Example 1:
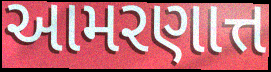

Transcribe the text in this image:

આમરણાત્ત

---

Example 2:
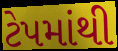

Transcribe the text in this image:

ટેપમાંથી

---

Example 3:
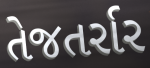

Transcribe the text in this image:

તેજતર્રાર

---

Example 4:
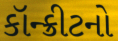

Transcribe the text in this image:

કૉન્ક્રીટનો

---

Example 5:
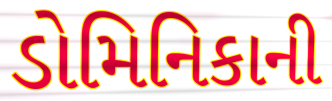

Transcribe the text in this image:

ડોમિનિકાની